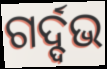
ଗର୍ଦ୍ଦଭ